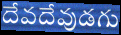
దేవదేవుడగు